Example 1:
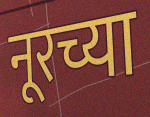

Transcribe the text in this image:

नूरच्या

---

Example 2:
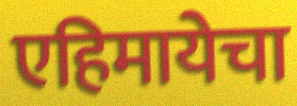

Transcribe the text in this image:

एहिमायेचा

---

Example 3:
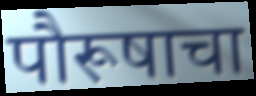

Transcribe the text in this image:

पौरूषाचा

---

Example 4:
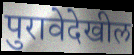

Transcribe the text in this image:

पुरावेदेखील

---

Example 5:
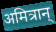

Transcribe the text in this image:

अमित्रान्